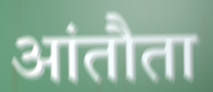
आंतौता